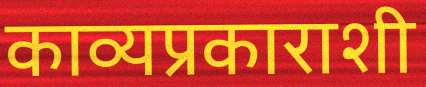
काव्यप्रकाराशी